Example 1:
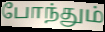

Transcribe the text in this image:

போந்தும்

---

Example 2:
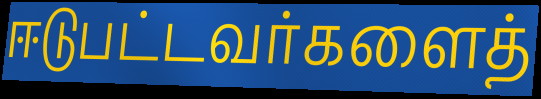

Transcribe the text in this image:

ஈடுபட்டவர்களைத்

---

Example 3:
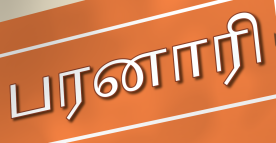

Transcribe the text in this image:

பரனாரி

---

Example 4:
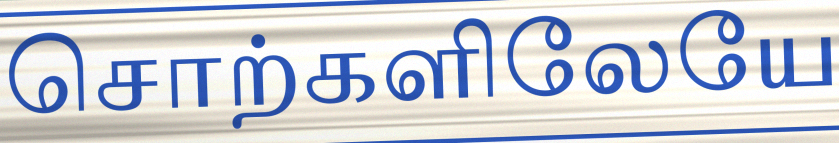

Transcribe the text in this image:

சொற்களிலேயே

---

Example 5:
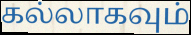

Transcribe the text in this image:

கல்லாகவும்